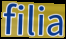
filia